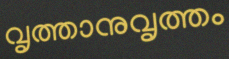
വൃത്താനുവൃത്തം